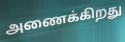
அணைக்கிறது